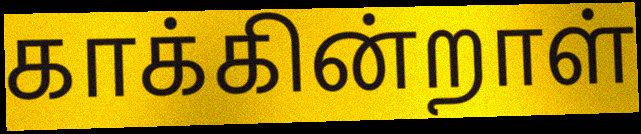
காக்கின்றாள்